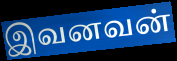
இவனவன்